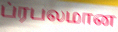
ப்ரபலமான